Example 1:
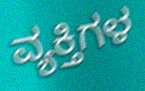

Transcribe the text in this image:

ವ್ಯಕ್ತಿಗಳ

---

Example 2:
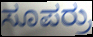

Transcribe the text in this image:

ಸೂಪರ್ರು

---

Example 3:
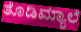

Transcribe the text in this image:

ತೊಡಿಮ್ಯಾಲೆ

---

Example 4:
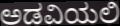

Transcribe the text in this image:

ಅಡವಿಯಲಿ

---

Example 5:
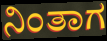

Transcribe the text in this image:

ನಿಂತಾಗ